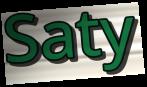
Saty